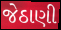
જેઠાણી